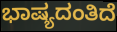
ಭಾಷ್ಯದಂತಿದೆ